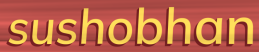
sushobhan